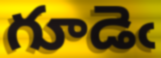
గూడెఁ